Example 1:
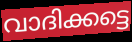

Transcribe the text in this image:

വാദിക്കട്ടെ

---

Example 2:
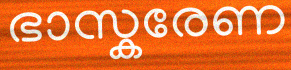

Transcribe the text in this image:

ഭാസ്കരേണ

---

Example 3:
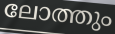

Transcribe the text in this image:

ലോത്തും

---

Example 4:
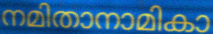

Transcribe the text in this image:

നമിതാനാമികാ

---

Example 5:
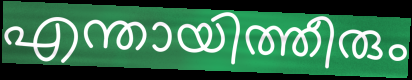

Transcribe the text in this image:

എന്തായിത്തീരും